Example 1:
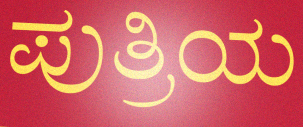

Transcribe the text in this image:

ಪುತ್ರಿಯ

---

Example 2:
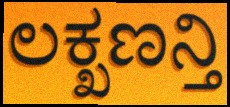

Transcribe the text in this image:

ಲಕ್ಖಣನ್ತಿ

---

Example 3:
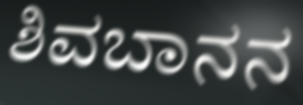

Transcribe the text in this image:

ಶಿವಬಾನನ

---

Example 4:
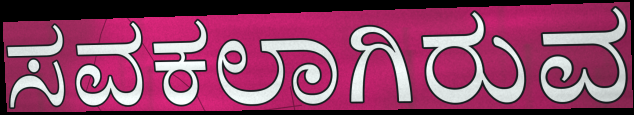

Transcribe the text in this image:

ಸವಕಲಾಗಿರುವ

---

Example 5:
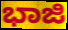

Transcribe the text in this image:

ಭಾಜಿ